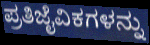
ಪ್ರತಿಜೈವಿಕಗಳನ್ನು